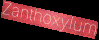
Zanthoxylum